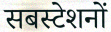
सबस्टेशनों